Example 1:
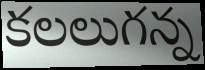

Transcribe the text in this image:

కలలుగన్న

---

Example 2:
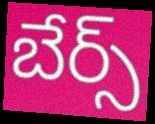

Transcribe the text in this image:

బేర్స్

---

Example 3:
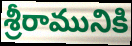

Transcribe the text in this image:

శ్రీరామునికి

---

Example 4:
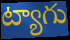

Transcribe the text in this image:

ట్యాగు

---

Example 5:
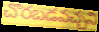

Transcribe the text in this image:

చొరబడవచ్చని